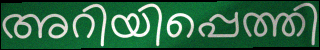
അറിയിപ്പെത്തി